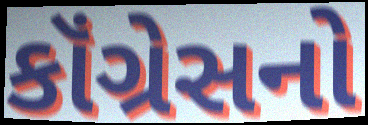
કૉંગ્રેસનો